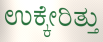
ಉಕ್ಕೇರಿತ್ತು